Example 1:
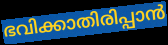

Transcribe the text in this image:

ഭവിക്കാതിരിപ്പാൻ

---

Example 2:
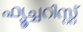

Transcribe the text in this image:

ഫ്യൂച്ചറിസ്റ്റ്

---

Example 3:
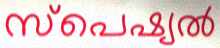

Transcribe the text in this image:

സ്പെഷ്യൽ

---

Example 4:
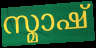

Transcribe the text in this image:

സ്മാഷ്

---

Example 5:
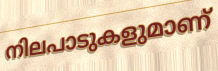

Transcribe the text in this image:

നിലപാടുകളുമാണ്